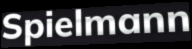
Spielmann